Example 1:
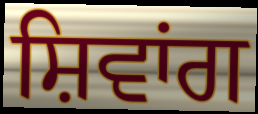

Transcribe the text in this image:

ਸ਼ਿਵਾਂਗ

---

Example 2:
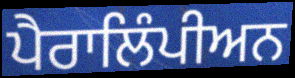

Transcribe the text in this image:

ਪੈਰਾਲਿੰਪੀਅਨ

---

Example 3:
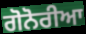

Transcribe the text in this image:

ਗੋਨੋਰੀਆ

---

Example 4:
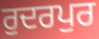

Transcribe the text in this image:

ਰੁਦਰਪੁਰ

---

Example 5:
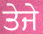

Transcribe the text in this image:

ਤੇਜੇ